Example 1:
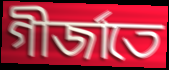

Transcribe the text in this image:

গীর্জাতে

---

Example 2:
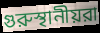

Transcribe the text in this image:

গুরুস্থানীয়রা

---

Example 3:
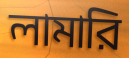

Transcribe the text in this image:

লামারি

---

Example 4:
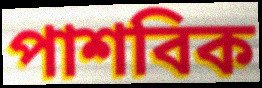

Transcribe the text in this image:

পাশবিক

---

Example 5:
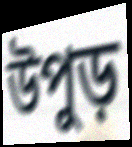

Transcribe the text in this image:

উপুড়